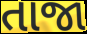
તાજા